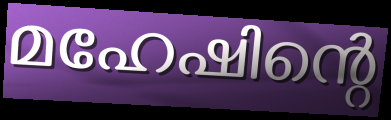
മഹേഷിന്റെ